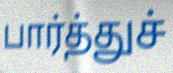
பார்த்துச்